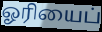
ஓரியைப்